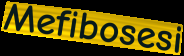
Mefibosesi